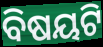
ବିଷୟଟି